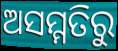
ଅସମ୍ମତିରୁ